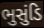
ભુસુંડિ